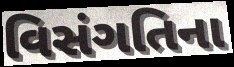
વિસંગતિના